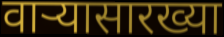
वाऱ्यासारख्या